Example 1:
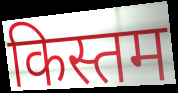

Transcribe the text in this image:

किस्तम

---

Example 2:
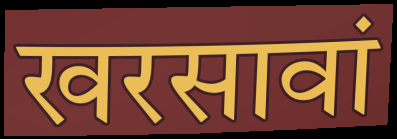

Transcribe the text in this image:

खरसावां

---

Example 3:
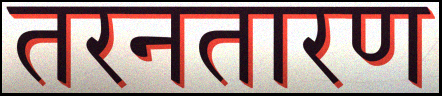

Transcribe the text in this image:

तरनतारण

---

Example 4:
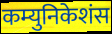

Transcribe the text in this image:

कम्‍युनिकेशंस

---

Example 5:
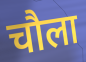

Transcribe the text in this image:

चौला